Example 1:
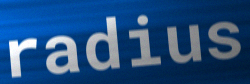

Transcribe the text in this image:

radius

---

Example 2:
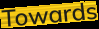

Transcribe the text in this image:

Towards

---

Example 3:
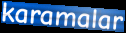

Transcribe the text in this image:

karamalar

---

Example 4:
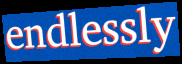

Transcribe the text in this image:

endlessly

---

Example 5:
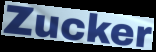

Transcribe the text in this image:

Zucker